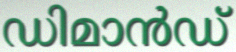
ഡിമാൻഡ്